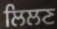
ਲਿਲਣ